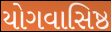
યોગવાસિષ્ઠ